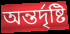
অন্তর্দৃষ্টি